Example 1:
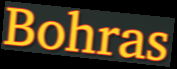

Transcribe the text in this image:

Bohras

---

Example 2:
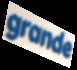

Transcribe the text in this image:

grande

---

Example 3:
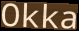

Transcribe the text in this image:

Okka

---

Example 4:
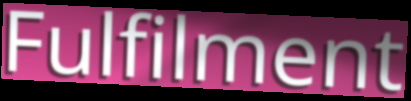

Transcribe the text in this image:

Fulfilment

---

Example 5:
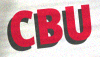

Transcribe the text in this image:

CBU